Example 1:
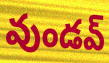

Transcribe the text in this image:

వుండవ్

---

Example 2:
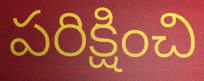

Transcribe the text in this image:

పరిక్షించి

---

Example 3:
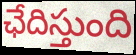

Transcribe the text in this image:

ఛేదిస్తుంది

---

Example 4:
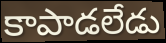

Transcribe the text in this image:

కాపాడలేడు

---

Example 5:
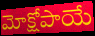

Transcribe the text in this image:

మోక్షోపాయే